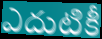
ఎదుటికీ